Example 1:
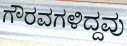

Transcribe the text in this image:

ಗೌರವಗಳಿದ್ದವು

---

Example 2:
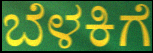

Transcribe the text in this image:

ಬೆಳಕಿಗೆ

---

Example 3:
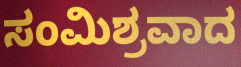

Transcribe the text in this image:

ಸಂಮಿಶ್ರವಾದ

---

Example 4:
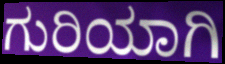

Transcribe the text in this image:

ಗುರಿಯಾಗಿ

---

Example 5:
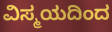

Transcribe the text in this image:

ವಿಸ್ಮಯದಿಂದ